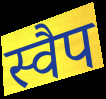
स्वैप